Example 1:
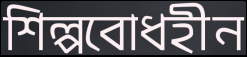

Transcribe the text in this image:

শিল্পবোধহীন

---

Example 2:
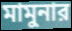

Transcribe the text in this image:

মামুনার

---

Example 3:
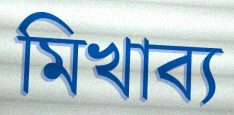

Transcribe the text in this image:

মিখাব্য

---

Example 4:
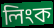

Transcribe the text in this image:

লিংক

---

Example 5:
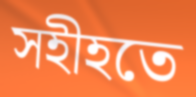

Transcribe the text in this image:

সহীহতে